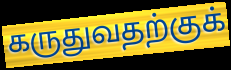
கருதுவதற்குக்